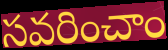
సవరించాం